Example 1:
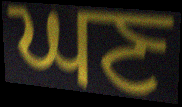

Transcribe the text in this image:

ਘਣ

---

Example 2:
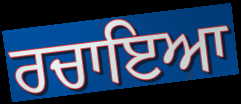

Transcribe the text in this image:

ਰਚਾਇਆ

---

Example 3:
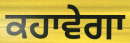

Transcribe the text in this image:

ਕਹਾਵੇਗਾ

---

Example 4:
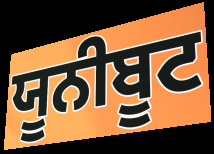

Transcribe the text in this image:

ਯੂਨੀਬੂਟ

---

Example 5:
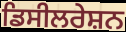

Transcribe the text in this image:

ਡਿਸੀਲਰੇਸ਼ਨ